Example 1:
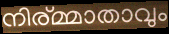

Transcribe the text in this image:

നിര്മ്മാതാവും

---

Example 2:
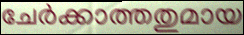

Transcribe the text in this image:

ചേർക്കാത്തതുമായ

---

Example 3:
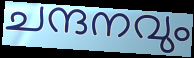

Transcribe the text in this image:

ചന്ദനവും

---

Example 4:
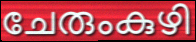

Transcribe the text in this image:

ചേരുംകുഴി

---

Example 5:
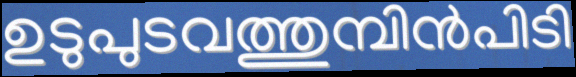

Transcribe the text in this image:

ഉടുപുടവത്തുമ്പിൻപിടി